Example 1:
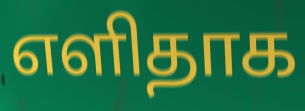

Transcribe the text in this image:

எளிதாக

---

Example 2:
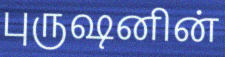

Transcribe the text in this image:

புருஷனின்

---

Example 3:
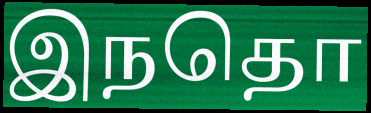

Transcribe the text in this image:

இநதொ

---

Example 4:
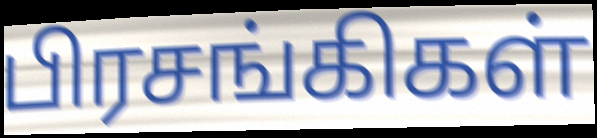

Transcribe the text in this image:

பிரசங்கிகள்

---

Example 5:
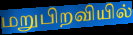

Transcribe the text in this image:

மறுபிறவியில்